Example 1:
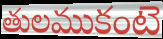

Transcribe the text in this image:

తులముకంటె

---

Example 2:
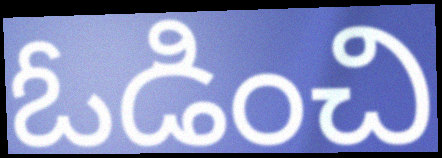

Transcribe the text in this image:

ఓడించి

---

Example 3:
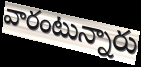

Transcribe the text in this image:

వారంటున్నారు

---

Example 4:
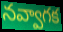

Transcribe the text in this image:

నవ్వాగక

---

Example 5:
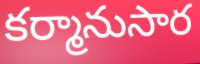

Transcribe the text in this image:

కర్మానుసార